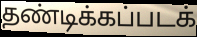
தண்டிக்கப்படக்